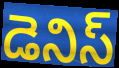
డెనిస్